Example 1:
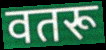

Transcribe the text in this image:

वतरू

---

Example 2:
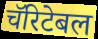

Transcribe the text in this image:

चॅरिटेबल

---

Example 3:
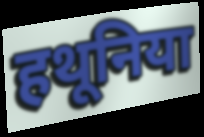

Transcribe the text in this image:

हथूनिया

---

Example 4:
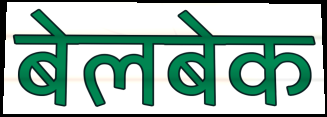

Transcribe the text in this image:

बेलबेक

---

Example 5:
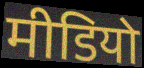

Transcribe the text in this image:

मीडियो